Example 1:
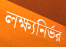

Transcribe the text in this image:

লক্ষ্যনির্ভর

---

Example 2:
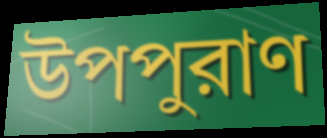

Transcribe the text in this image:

উপপুরাণ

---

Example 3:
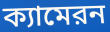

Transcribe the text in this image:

ক্যামেরন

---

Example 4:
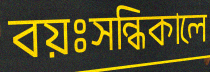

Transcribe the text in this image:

বয়ঃসন্ধিকালে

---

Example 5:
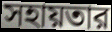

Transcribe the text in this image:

সহায়তার